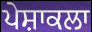
ਪੇਸ਼ਾਕਲਾ